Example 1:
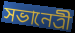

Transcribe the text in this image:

সভানেত্রী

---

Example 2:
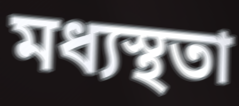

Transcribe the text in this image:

মধ্যস্থতা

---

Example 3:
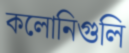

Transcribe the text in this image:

কলোনিগুলি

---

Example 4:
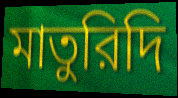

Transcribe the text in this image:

মাতুরিদি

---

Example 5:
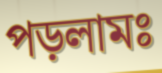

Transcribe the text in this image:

পড়লামঃ